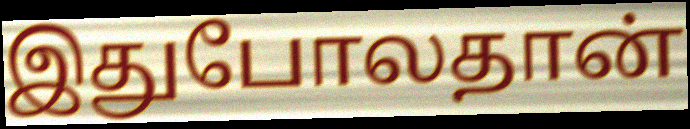
இதுபோலதான்